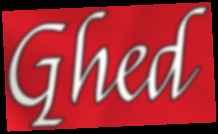
Ghed